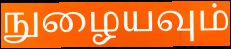
நுழையவும்